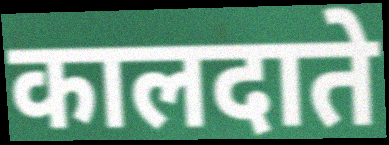
कालदाते